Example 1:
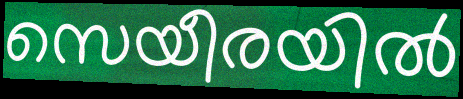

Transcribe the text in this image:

സെയീരയിൽ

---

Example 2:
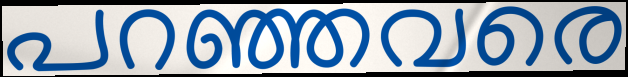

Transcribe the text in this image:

പറഞ്ഞവരെ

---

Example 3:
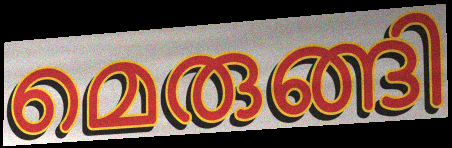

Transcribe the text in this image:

മെരുങ്ങി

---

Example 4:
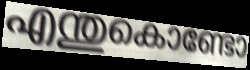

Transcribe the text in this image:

എന്തുകൊണ്ടോ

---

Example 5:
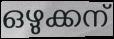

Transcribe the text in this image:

ഒഴുക്കന്